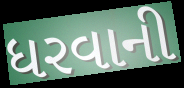
ધરવાની